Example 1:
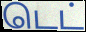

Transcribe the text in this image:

டெட்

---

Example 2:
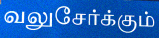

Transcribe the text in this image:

வலுசேர்க்கும்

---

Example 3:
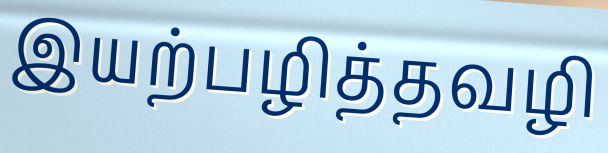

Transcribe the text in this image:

இயற்பழித்தவழி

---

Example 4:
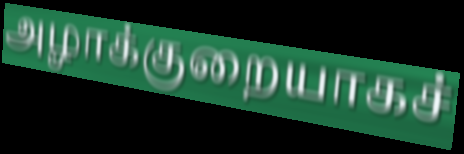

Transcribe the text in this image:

அழாக்குறையாகச்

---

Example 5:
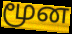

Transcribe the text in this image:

மூன